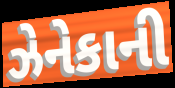
ઝેનેકાની